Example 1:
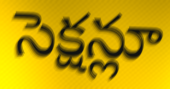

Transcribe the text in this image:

సెక్షన్లూ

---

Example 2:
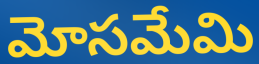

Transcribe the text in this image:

మోసమేమి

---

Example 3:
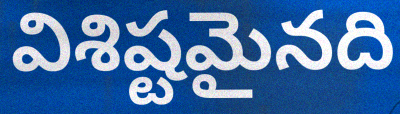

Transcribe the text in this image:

విశిష్టమైనది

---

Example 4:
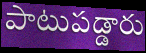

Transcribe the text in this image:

పాటుపడ్డారు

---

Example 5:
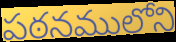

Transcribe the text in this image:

పఠనములోని